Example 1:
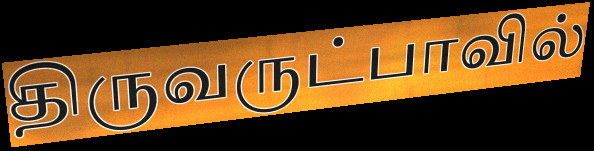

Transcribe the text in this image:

திருவருட்பாவில்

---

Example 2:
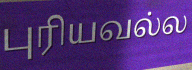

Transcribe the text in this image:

புரியவல்ல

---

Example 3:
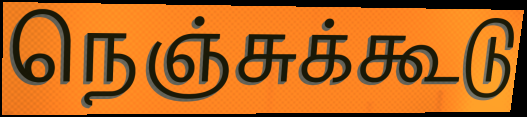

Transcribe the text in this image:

நெஞ்சுக்கூடு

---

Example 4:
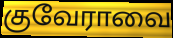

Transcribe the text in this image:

குவேராவை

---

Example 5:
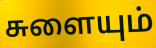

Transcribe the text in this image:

சுளையும்